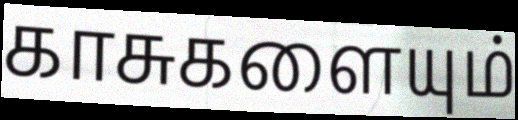
காசுகளையும்